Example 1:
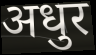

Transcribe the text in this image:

अधुर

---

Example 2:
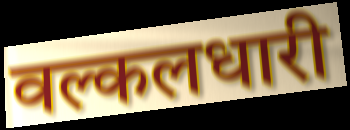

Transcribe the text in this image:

वल्कलधारी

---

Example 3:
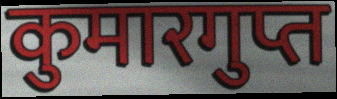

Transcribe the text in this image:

कुमारगुप्त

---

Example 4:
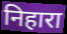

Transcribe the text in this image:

निहारा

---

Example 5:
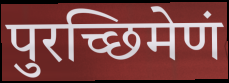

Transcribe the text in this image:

पुरच्छिमेणं